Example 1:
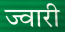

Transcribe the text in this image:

ज्वारी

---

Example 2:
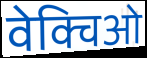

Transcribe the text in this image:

वेक्चिओ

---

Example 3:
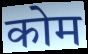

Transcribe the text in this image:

कोम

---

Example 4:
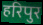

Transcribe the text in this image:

हरिपुर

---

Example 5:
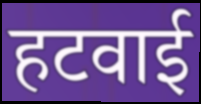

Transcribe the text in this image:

हटवाई